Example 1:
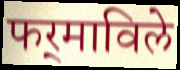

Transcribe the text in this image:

फर्माविले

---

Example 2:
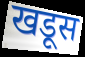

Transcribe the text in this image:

खडूस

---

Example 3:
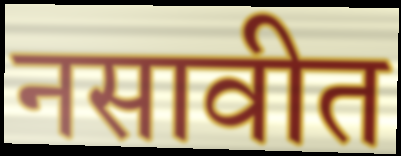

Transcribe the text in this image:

नसावीत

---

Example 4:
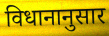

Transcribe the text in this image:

विधानानुसार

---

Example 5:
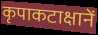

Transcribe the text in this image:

कृपाकटाक्षानें